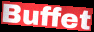
Buffet